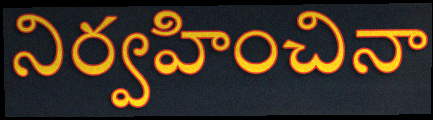
నిర్వహించినా